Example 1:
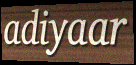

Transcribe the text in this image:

adiyaar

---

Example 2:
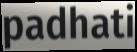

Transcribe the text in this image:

padhati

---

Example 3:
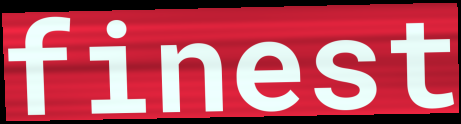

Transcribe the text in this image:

finest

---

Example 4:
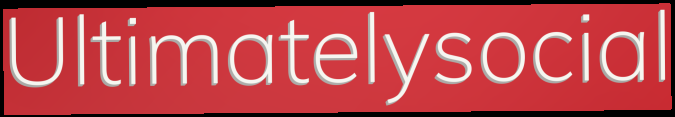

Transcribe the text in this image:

Ultimatelysocial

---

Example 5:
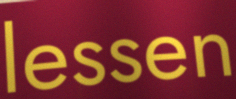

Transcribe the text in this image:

lessen